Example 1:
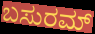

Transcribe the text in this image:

ಬಸುರಮ್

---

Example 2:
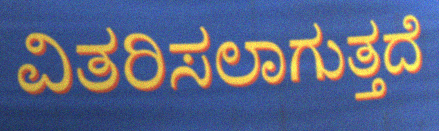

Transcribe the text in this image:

ವಿತರಿಸಲಾಗುತ್ತದೆ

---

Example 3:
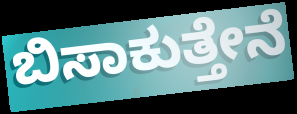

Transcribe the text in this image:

ಬಿಸಾಕುತ್ತೇನೆ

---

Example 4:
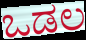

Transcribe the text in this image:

ಒಡಲ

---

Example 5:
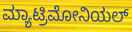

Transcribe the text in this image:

ಮ್ಯಾಟ್ರಿಮೋನಿಯಲ್